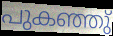
പുകഞ്ഞു്